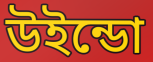
উইন্ডো